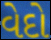
વેદો